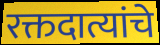
रक्तदात्यांचे